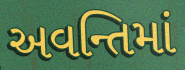
અવન્તિમાં